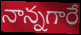
నాన్నగారే